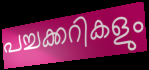
പച്ചക്കറികളും